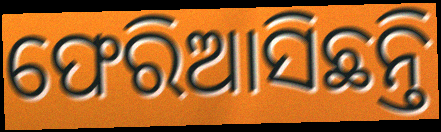
ଫେରିଆସିଛନ୍ତି